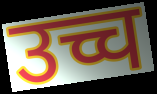
उच्च